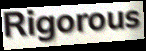
Rigorous